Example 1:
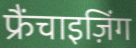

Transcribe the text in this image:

फ्रैंचाइज़िंग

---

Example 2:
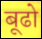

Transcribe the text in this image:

बूढो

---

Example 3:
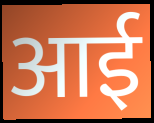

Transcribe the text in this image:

आई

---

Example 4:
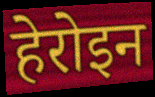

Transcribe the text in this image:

हेरोइन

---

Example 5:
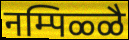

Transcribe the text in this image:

नम्पिळ्ळै